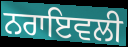
ਨਰਾਇਵਲੀ